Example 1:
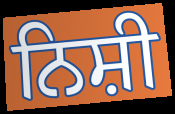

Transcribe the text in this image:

ਨਿਸ਼ੀ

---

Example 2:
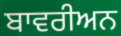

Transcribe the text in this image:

ਬਾਵਰੀਅਨ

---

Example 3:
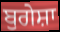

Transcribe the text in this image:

ਬੁਗੇਸ਼ਾ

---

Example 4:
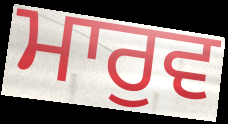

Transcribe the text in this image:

ਮਾਰੁਵ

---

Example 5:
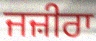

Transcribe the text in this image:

ਜਜ਼ੀਰਾ